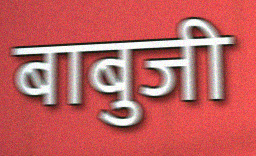
बाबुजी